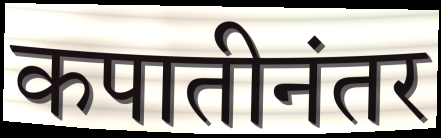
कपातीनंतर